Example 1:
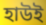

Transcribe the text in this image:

হাউই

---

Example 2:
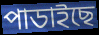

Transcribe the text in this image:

পাডাইছে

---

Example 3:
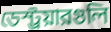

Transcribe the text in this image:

ডেস্ট্রয়ারগুলি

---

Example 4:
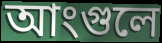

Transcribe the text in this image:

আংগুলে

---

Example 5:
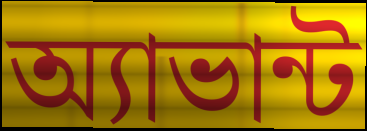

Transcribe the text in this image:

অ্যাভান্ট